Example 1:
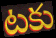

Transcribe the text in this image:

టకు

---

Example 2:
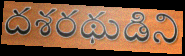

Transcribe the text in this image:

దశరథుడిని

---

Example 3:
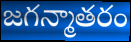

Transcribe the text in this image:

జగన్మాతరం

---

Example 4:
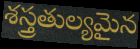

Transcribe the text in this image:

శస్త్రతుల్యమైన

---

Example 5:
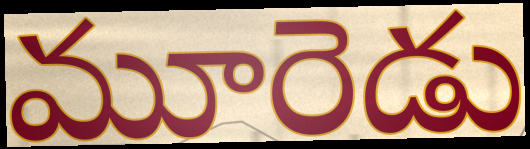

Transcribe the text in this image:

మూరెడు